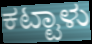
ಕಟ್ಟಾಳು